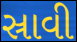
સ્રાવી